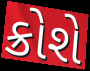
ક્રોશે